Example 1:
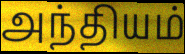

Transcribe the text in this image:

அந்தியம்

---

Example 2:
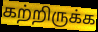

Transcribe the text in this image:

கற்றிருக்க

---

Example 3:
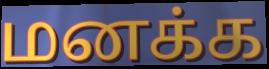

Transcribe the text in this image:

மனக்க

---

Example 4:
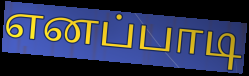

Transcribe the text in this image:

எனப்பாடி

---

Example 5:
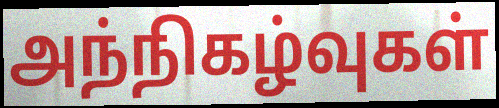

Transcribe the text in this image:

அந்நிகழ்வுகள்